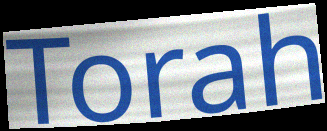
Torah